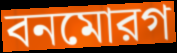
বনমোরগ